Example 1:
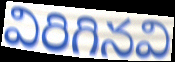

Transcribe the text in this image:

విరిగినవి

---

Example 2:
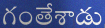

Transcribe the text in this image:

గంతేశాడు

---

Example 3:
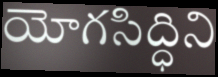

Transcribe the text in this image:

యోగసిద్ధిని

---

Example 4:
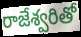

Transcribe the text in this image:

రాజేశ్వరితో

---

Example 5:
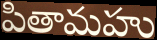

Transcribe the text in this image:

పితామహు